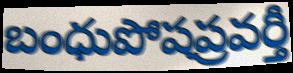
బంధుపోషప్రవర్తీ